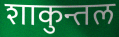
शाकुन्तल